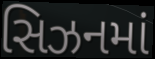
સિઝનમાં